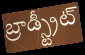
బ్రాడ్స్ట్రీట్